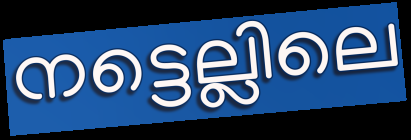
നട്ടെല്ലിലെ